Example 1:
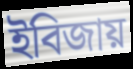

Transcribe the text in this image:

ইবিজায়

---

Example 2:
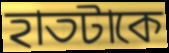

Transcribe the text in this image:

হাতটাকে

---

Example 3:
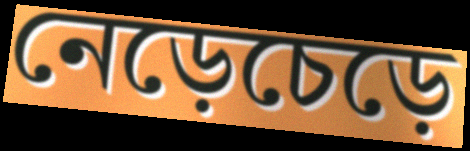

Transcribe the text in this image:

নেড়েচেড়ে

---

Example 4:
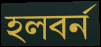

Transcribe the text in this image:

হলবর্ন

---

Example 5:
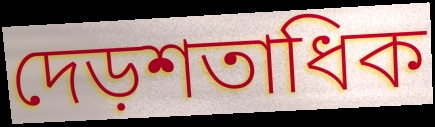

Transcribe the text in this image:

দেড়শতাধিক